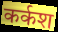
कर्कश